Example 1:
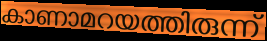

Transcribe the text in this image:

കാണാമറയത്തിരുന്ന്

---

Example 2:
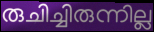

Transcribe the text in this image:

രുചിച്ചിരുന്നില്ല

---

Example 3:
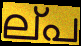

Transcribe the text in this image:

ല്‌പ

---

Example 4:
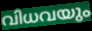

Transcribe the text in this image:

വിധവയും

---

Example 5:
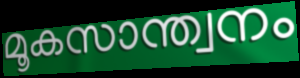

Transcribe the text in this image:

മൂകസാന്ത്വനം